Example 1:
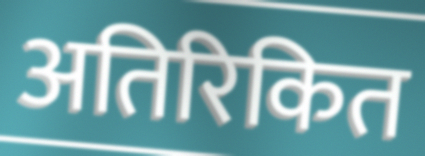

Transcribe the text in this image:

अतिरिकित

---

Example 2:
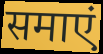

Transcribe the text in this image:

समाएं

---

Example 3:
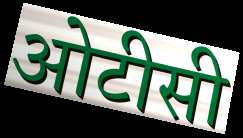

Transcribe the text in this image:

ओटीसी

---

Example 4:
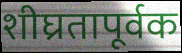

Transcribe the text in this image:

शीघ्रतापूर्वक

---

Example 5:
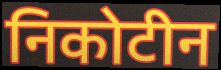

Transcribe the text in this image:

निकोटीन